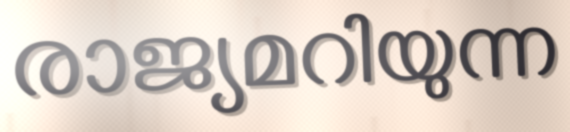
രാജ്യമറിയുന്ന